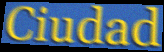
Ciudad